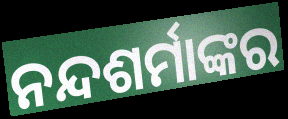
ନନ୍ଦଶର୍ମାଙ୍କର